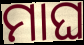
ମାଘ